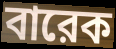
বারেক